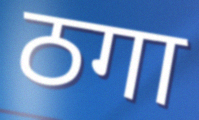
ठगा